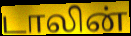
டாலின்